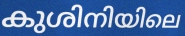
കുശിനിയിലെ